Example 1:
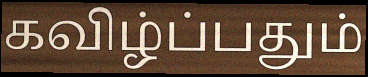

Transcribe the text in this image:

கவிழ்ப்பதும்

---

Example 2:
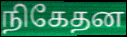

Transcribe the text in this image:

நிகேதன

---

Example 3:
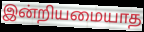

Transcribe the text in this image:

இன்றியமையாத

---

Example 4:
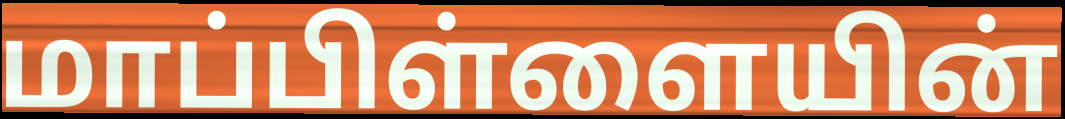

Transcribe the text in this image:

மாப்பிள்ளையின்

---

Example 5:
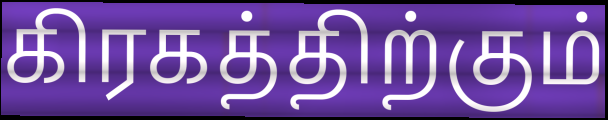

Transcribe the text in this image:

கிரகத்திற்கும்